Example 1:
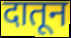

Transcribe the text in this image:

दातून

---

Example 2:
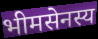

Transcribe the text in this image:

भीमसेनस्य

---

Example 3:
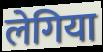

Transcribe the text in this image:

लेगिया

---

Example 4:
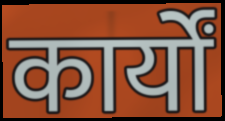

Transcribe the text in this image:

कार्यों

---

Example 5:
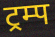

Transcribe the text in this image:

ट्रम्प